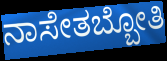
ನಾಸೇತಬ್ಬೋತಿ